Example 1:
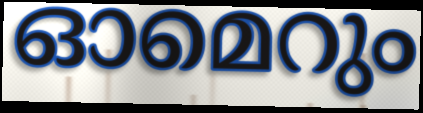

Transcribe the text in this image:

ഓമെറും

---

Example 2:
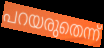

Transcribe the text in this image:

പറയരുതെന്ന്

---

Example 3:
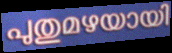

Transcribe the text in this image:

പുതുമഴയായി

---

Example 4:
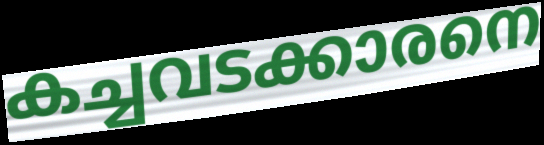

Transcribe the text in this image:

കച്ചവടക്കാരനെ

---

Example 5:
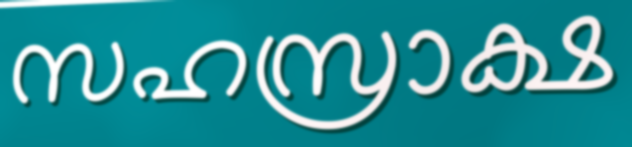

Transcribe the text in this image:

സഹസ്രാക്ഷ